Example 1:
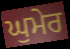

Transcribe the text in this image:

ਘੁਮੇਰ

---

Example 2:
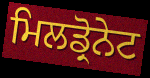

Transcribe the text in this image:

ਮਿਲਡ੍ਰੋਨੇਟ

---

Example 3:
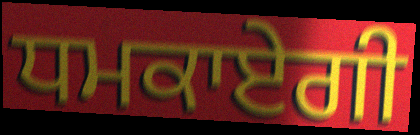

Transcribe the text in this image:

ਧਮਕਾਏਗੀ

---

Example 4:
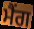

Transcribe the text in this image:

ਮੈਂਗ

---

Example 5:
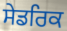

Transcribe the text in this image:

ਸੇਡਰਿਕ